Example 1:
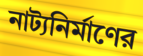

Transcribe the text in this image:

নাট্যনির্মাণের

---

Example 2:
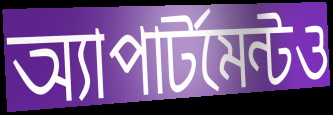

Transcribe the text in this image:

অ্যাপার্টমেন্টও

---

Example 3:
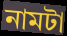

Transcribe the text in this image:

নামটা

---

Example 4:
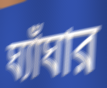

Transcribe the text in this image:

ঘ্যাঁঘার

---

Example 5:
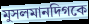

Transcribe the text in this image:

মুসলমানদিগকে